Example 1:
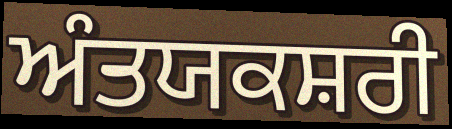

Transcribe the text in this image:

ਅੰਤਯਕਸ਼ਰੀ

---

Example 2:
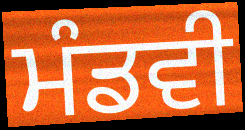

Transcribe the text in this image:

ਮੰਡਵੀ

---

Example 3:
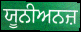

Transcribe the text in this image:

ਯੂਨੀਅਨਜ਼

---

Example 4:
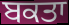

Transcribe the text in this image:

ਬਕਤਾ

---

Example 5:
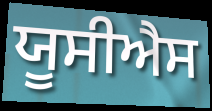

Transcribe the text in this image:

ਯੂਸੀਐਸ